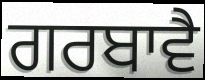
ਗਰਬਾਵੈ